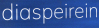
diaspeirein